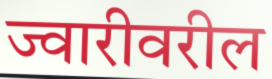
ज्वारीवरील